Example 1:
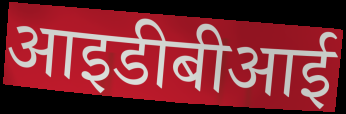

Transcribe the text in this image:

आइडीबीआई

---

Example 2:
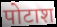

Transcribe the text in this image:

पोटाश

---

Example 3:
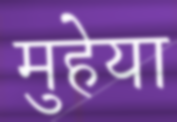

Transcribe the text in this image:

मुहेया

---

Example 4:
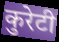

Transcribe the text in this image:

कुरेटी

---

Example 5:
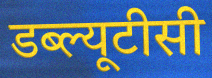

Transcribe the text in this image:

डब्ल्यूटीसी